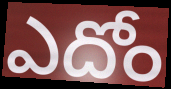
ఎదోం